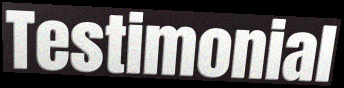
Testimonial